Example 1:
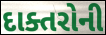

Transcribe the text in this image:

દાક્તરોની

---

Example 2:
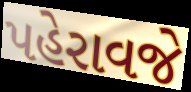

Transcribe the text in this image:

પહેરાવજે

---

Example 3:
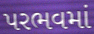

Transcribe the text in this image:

પરભવમાં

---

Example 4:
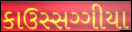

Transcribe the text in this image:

કાઉસ્સગ્ગીયા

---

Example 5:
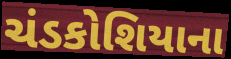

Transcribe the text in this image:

ચંડકોશિયાના